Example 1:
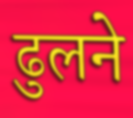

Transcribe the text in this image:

ढुलने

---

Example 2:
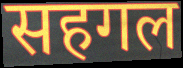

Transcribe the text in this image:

सहगल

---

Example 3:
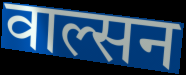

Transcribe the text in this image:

वाल्सन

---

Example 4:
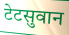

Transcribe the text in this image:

टेटसुवान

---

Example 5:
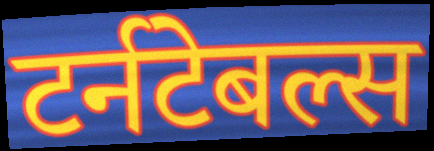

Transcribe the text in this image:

टर्नटेबल्स